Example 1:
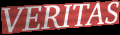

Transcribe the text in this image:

VERITAS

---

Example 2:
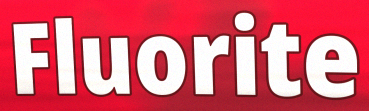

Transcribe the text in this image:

Fluorite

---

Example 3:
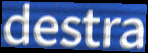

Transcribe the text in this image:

destra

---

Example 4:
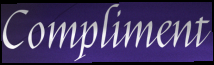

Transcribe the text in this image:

Compliment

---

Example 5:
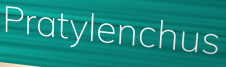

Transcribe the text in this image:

Pratylenchus